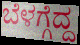
ಬೆಳಗ್ಗೆದ್ದ